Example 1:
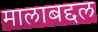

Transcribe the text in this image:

मालाबद्दल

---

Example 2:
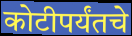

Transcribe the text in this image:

कोटीपर्यंतचे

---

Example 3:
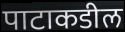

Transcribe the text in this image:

पाटाकडील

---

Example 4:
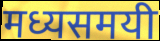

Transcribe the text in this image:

मध्यसमयी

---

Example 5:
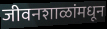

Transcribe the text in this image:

जीवनशाळांमधून